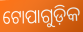
ଟୋପାଗୁଡ଼ିକ